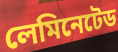
লেমিনেটেড